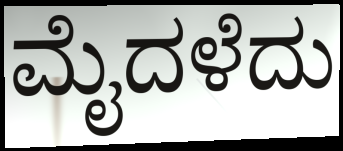
ಮೈದಳೆದು